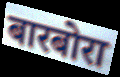
बारबोरा